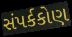
સંપર્કકોણ